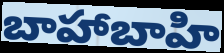
బాహాబాహి